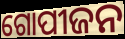
ଗୋପୀଜନ